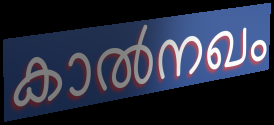
കാൽനഖം